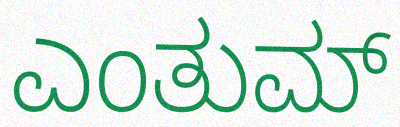
ಎಂತುಮ್